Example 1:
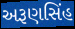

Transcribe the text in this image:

અરૂણસિંહ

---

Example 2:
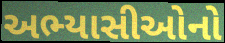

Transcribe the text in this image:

અભ્યાસીઓનો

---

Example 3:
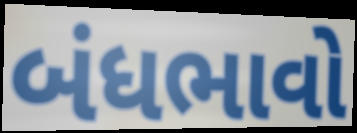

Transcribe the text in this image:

બંધભાવો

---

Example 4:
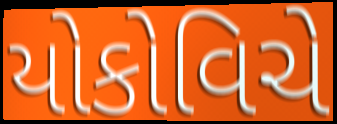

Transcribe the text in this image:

યોકોવિચે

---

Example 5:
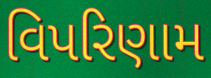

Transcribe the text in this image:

વિપરિણામ